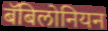
बॅबिलोनियन